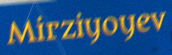
Mirziyoyev